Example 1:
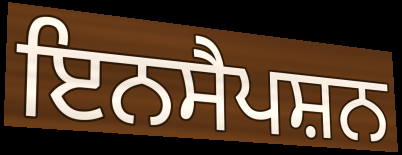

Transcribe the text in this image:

ਇਨਸੈਪਸ਼ਨ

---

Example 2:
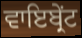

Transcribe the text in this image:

ਵਾਇਬ੍ਰੇਂਟ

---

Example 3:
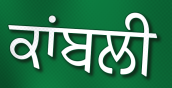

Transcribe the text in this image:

ਕਾਂਬਲੀ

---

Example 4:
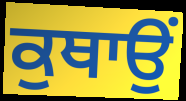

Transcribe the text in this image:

ਕੁਥਾਉਂ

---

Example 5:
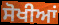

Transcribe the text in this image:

ਸੋਖੀਆਂ